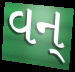
વન્